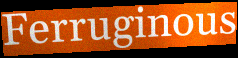
Ferruginous